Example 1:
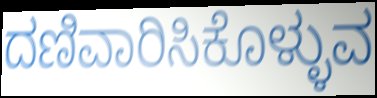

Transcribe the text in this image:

ದಣಿವಾರಿಸಿಕೊಳ್ಳುವ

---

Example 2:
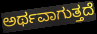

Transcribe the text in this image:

ಅರ್ಥವಾಗುತ್ತದೆ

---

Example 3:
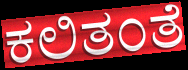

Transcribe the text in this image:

ಕಲಿತಂತೆ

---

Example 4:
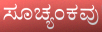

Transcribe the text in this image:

ಸೂಚ್ಯಂಕವು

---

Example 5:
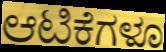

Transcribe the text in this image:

ಆಟಿಕೆಗಳೂ